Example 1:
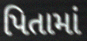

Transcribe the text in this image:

પિતામાં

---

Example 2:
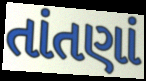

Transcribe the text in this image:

તાંતણાં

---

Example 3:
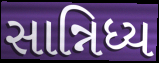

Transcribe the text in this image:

સાન્નિધ્ય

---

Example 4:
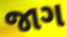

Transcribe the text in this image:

જાગ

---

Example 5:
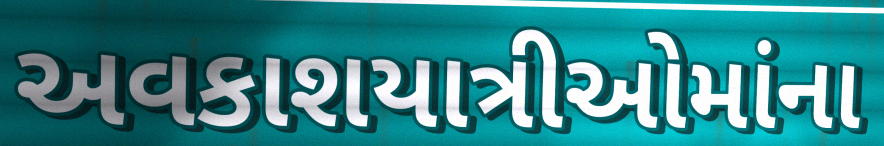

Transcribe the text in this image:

અવકાશયાત્રીઓમાંના